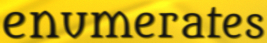
enumerates